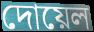
দোয়েল